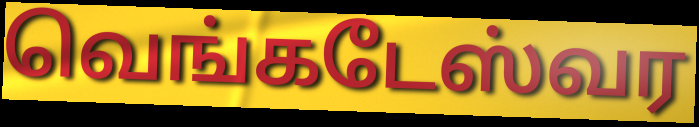
வெங்கடேஸ்வர